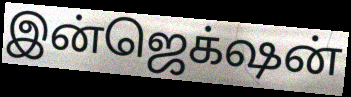
இன்ஜெக்‌ஷன்